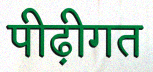
पीढ़ीगत